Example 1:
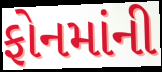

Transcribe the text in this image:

ફોનમાંની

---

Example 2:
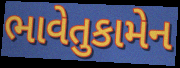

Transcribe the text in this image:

ભાવેતુકામેન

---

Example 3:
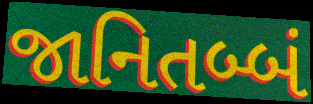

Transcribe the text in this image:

જાનિતબ્બં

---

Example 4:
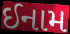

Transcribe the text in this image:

ઈનામ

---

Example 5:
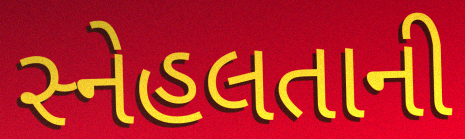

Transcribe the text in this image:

સ્નેહલતાની